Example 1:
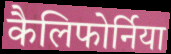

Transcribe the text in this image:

कैलिफोर्निया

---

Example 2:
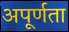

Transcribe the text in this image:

अपूर्णता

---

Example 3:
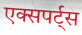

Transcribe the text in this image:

एक्सपर्ट्स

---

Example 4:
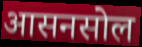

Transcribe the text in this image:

आसनसोल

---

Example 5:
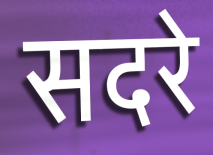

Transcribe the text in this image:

सदरे